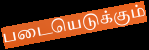
படையெடுக்கும்